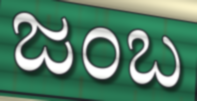
ಜಂಬ